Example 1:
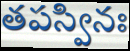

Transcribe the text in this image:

తపస్వినః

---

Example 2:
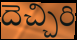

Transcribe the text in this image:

దెచ్చిరి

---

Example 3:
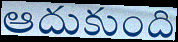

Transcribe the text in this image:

ఆదుకుంది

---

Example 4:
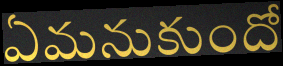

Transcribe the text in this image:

ఏమనుకుందో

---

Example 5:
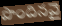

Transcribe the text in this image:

పొందినవై